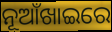
ନୂଆଁଖାଇରେ